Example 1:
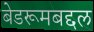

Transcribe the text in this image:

बेडरूमबद्दल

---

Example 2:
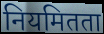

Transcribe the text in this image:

नियमितता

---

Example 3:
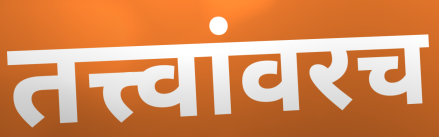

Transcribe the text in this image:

तत्त्वांवरच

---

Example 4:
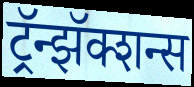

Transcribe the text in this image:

ट्रॅन्झॅक्शन्स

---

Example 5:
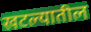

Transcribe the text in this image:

खटल्यातील